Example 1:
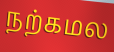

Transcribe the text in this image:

நற்கமல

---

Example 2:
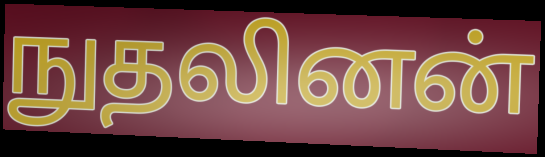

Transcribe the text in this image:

நுதலினன்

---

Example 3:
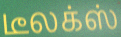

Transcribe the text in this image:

டீலக்ஸ்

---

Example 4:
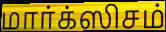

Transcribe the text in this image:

மார்க்ஸிசம்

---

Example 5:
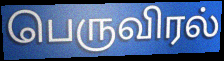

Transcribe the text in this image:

பெருவிரல்